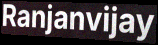
Ranjanvijay